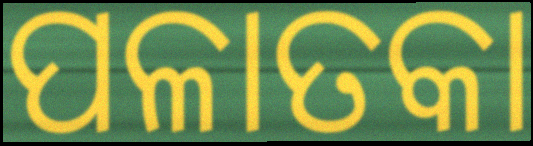
ପଳାତକା